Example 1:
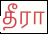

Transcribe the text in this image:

தீரா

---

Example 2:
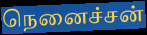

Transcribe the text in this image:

நெனைச்சன்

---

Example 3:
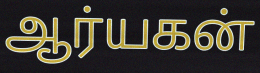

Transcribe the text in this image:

ஆர்யகன்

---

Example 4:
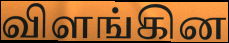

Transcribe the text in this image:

விளங்கின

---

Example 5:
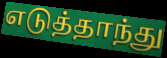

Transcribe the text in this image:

எடுத்தாந்து